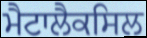
ਮੈਟਾਲੈਕਸਿਲ